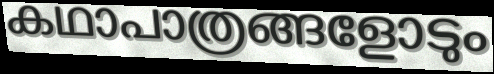
കഥാപാത്രങ്ങളോടും